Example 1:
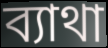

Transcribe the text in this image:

ব্যাথা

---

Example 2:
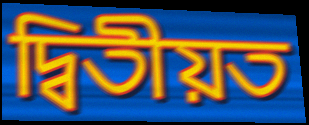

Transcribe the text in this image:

দ্বিতীয়ত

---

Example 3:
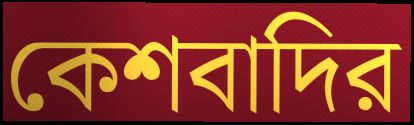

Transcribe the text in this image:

কেশবাদির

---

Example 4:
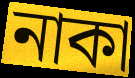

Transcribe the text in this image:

নাকা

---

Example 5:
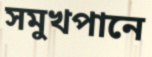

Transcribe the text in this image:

সমুখপানে